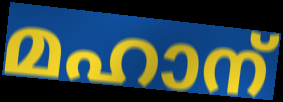
മഹാന്